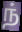
ந்